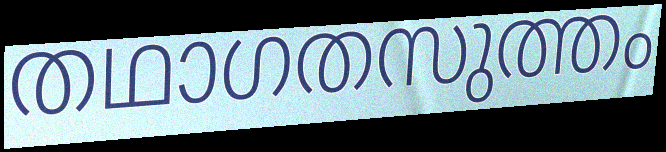
തഥാഗതസുത്തം